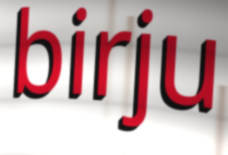
birju